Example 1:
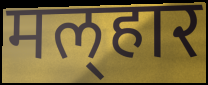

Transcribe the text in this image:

मल्हार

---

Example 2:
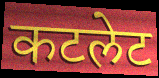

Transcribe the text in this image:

कटलेट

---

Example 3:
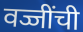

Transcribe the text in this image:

वज्जींची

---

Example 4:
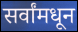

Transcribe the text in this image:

सर्वांमधून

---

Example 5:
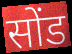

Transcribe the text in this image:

सोंड